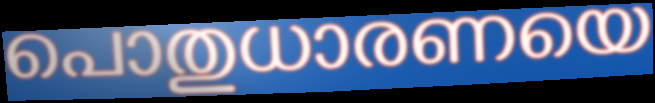
പൊതുധാരണയെ